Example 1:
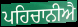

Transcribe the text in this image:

ਪਹਿਚਾਨੀਐ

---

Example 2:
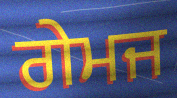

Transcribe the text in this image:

ਗੇਮਜ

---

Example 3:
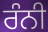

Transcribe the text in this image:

ਰੰਨੀ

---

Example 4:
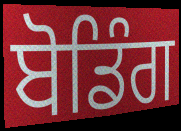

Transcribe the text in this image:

ਬੋਡਿੰਗ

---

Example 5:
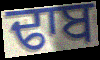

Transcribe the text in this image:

ਢਾਬ